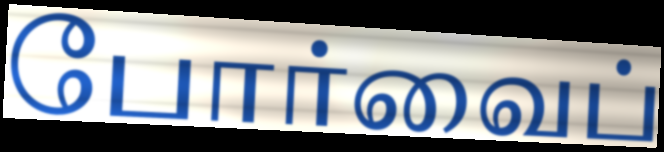
போர்வைப்